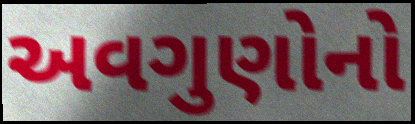
અવગુણોનો